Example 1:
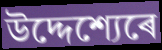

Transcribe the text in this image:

উদ্দেশ্যেৰে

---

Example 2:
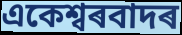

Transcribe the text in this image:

একেশ্বৰবাদৰ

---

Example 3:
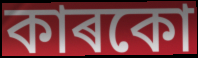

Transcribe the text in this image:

কাৰকো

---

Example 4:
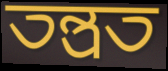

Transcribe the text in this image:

তন্ত্ৰত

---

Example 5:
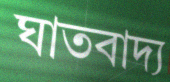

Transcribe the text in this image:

ঘাতবাদ্য